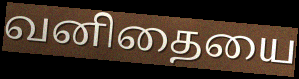
வனிதையை